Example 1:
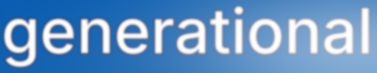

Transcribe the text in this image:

generational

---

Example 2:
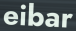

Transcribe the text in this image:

eibar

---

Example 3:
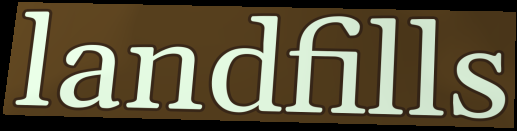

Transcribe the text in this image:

landfills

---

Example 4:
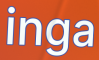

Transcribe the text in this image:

inga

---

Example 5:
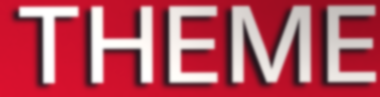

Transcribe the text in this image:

THEME